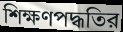
শিক্ষণপদ্ধতির